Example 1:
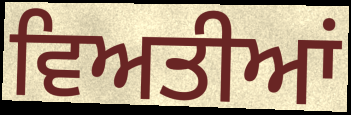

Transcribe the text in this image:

ਵਿਅਤੀਆਂ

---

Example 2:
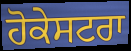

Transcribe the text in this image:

ਹੋਕੇਸਟਰਾ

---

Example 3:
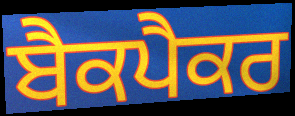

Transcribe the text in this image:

ਬੈਕਪੈਕਰ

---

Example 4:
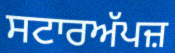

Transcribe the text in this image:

ਸਟਾਰਅੱਪਜ਼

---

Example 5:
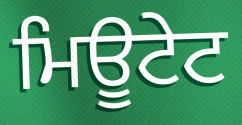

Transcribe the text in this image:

ਮਿਊਟੇਟ